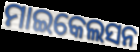
ମାଇକେଲସନ